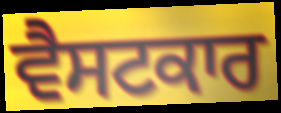
ਵੈਸਟਕਾਰ